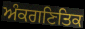
ਅੰਕਗਣਿਤਿਕ